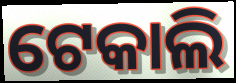
ଟେକାଲି